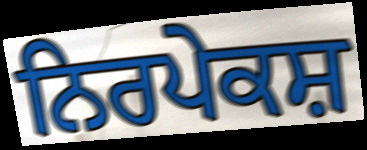
ਨਿਰਪੇਕਸ਼